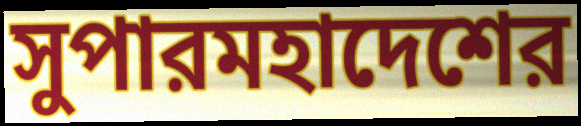
সুপারমহাদেশের